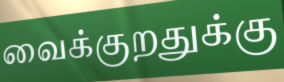
வைக்குறதுக்கு